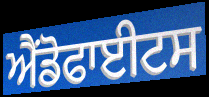
ਐਂਡੋਫਾਈਟਸ